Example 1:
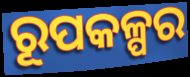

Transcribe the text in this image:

ରୂପକଳ୍ପର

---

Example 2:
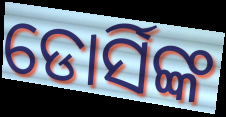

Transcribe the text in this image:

ଡୋର୍ସିଙ୍କ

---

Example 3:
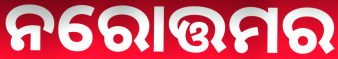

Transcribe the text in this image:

ନରୋତ୍ତମର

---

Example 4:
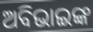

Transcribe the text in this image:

ଅବିଭାଇଙ୍କ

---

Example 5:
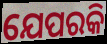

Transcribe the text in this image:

ଯେପରକି